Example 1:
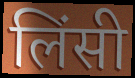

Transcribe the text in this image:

लिंसी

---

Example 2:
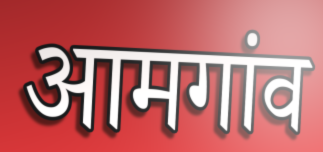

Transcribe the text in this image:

आमगांव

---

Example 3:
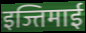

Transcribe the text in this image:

इज्तिमाई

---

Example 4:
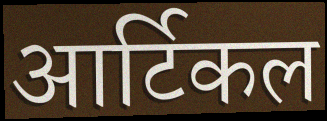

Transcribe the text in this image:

आर्टिकल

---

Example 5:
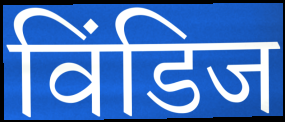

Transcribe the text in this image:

विंडिज